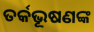
ତର୍କଭୂଷଣଙ୍କ